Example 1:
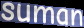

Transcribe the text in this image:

suman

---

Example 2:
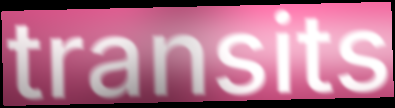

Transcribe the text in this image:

transits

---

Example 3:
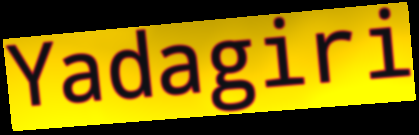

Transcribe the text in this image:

Yadagiri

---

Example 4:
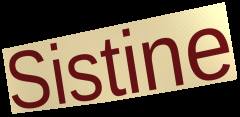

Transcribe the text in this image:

Sistine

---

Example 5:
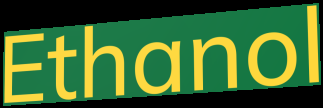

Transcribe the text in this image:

Ethanol